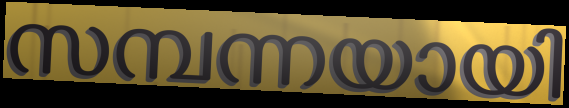
സമ്പന്നയായി